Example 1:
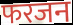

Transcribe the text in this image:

फरजन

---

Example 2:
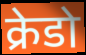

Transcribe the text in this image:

क्रेडो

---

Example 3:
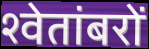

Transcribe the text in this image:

श्वेतांबरों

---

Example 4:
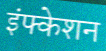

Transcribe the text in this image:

इंफ्केशन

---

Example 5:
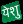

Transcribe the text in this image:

येशु